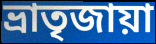
ভ্রাতৃজায়া